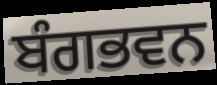
ਬੰਗਭਵਨ